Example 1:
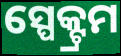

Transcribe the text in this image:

ସ୍ପେକ୍ଟ୍ରମ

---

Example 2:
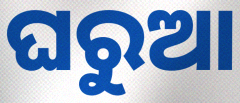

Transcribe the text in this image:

ଘରୁଆ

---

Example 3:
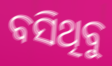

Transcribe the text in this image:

ବସିଥିବୁ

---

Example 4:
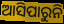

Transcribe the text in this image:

ଆସିପାରୁନି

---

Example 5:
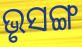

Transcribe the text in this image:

ଭୃସଙ୍ଗ